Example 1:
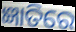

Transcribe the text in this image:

ଜ୍ଞାତିରେ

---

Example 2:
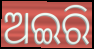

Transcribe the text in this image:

ଅଇରି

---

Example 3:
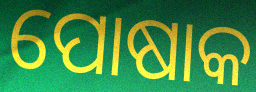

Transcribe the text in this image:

ପୋଷାକ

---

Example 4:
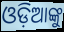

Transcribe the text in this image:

ଓଡ଼ିଆଙ୍କୁ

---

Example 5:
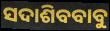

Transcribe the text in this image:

ସଦାଶିବବାବୁ